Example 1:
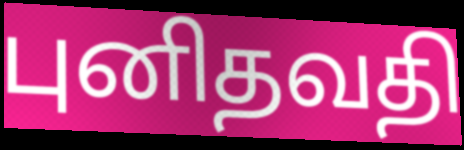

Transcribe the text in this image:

புனிதவதி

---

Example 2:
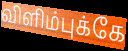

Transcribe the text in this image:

விளிம்புக்கே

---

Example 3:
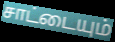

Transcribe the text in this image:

சாட்டையும்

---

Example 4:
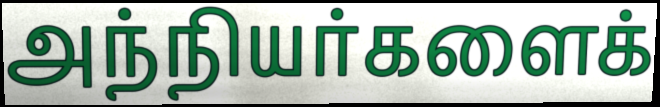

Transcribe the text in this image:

அந்நியர்களைக்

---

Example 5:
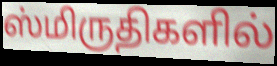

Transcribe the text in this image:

ஸ்மிருதிகளில்